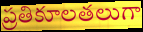
ప్రతికూలతలుగా